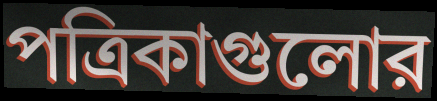
পত্রিকাগুলোর